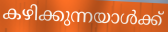
കഴിക്കുന്നയാൾക്ക്